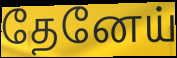
தேனேய்